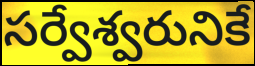
సర్వేశ్వరునికే